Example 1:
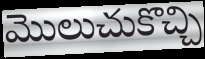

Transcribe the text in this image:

మొలుచుకొచ్చి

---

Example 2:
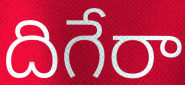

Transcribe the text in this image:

దిగేరా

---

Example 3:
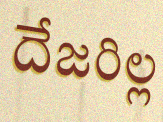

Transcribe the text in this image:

దేజరిల్ల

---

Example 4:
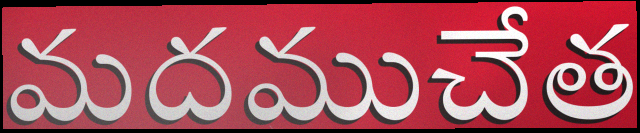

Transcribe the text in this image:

మదముచేత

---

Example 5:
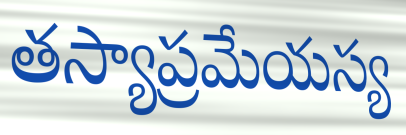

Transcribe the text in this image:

తస్యాప్రమేయస్య